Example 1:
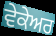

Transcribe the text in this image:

ਵੇਕੇਅਰ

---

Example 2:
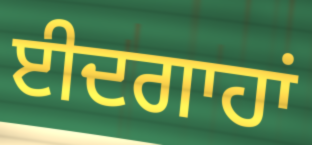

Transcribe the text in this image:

ਈਦਗਾਹਾਂ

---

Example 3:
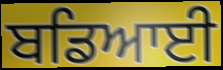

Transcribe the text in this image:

ਬਡਿਆਈ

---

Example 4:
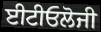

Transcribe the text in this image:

ਈਟੀਓਲੋਜੀ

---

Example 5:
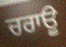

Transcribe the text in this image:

ਚਰਾਊ